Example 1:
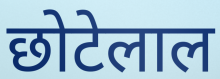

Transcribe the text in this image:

छोटेलाल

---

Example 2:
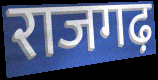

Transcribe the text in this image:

राजगढ़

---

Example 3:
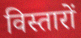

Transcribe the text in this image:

विस्तारों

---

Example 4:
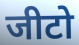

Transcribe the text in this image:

जीटो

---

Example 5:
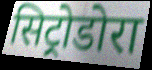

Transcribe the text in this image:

सिट्रोडोरा